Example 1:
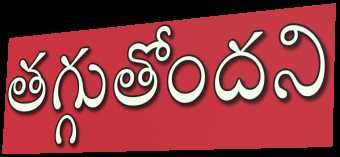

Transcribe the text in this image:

తగ్గుతోందని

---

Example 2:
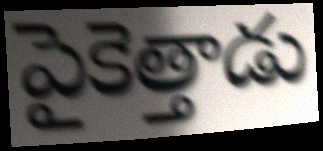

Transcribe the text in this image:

పైకెత్తాడు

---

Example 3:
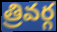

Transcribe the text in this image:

త్రివర్గ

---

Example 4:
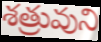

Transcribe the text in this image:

శత్రువుని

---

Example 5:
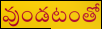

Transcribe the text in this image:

వుండటంతో